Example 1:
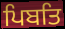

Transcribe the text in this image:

ਪਿਬਤਿ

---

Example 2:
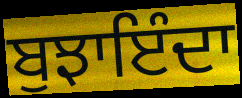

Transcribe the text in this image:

ਬੁਝਾਇੰਦਾ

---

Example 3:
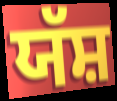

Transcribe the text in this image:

ਯੱਸ਼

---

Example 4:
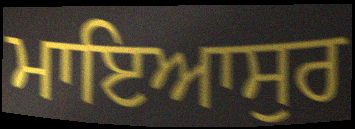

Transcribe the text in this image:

ਮਾਇਆਸੁਰ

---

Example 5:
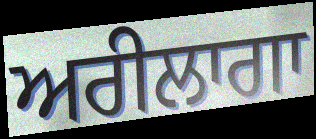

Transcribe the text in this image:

ਅਰੀਲਾਗਾ